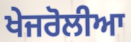
ਖੇਜਰੋਲੀਆ